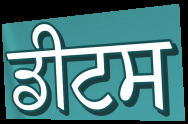
ਡੀਟਸ